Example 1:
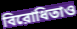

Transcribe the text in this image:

বিরোধিতাও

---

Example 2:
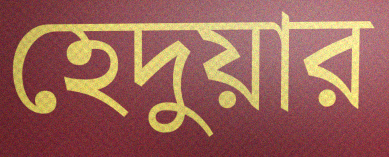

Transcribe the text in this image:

হেদুয়ার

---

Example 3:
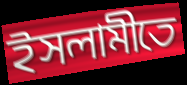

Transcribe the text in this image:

ইসলামীতে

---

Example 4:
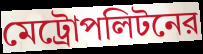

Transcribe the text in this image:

মেট্রোপলিটনের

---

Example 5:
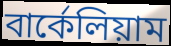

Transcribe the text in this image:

বার্কেলিয়াম